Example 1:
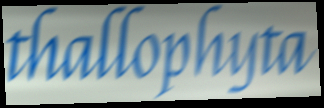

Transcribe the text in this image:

thallophyta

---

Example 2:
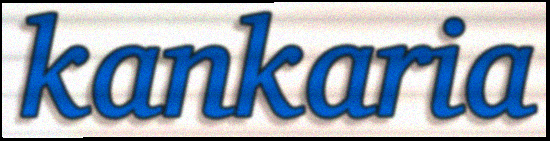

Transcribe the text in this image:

kankaria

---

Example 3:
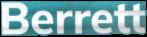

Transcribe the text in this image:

Berrett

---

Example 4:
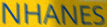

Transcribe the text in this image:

NHANES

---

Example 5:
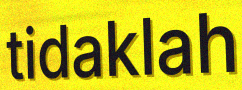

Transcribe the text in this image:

tidaklah